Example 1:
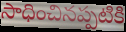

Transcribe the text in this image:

సాధించినప్పటికి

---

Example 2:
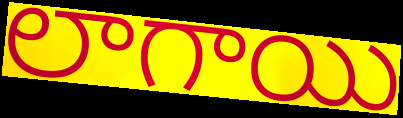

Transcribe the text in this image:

లాగాయి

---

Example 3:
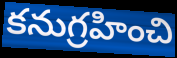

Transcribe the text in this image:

కనుగ్రహించి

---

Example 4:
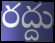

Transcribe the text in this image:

రద్దు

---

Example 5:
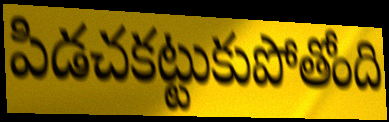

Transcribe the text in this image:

పిడచకట్టుకుపోతోంది